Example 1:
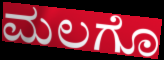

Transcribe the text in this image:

ಮಲಗೊ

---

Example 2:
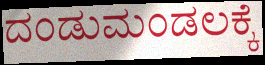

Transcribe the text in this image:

ದಂಡುಮಂಡಲಕ್ಕೆ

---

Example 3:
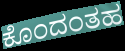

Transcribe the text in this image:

ಕೊಂದಂತಹ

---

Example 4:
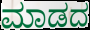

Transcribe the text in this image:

ಮಾಡದ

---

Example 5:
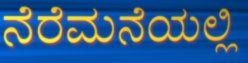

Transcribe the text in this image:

ನೆರೆಮನೆಯಲ್ಲಿ